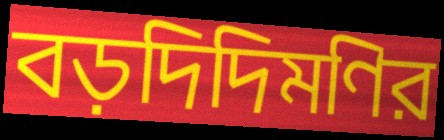
বড়দিদিমণির